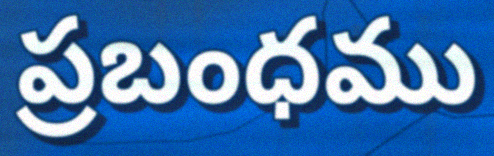
ప్రబంధము